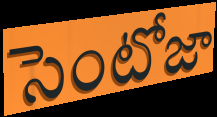
సెంటోజా